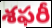
శఫరీ